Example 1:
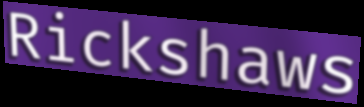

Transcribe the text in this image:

Rickshaws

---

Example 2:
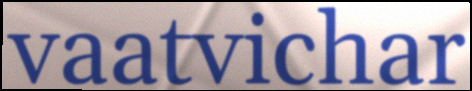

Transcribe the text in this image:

vaatvichar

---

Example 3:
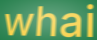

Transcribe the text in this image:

whai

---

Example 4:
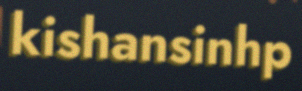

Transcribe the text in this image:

kishansinhp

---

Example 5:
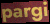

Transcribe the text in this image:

pargi